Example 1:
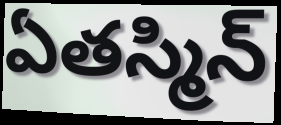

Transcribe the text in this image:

ఏతస్మిన్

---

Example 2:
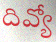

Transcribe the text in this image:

దివ్యో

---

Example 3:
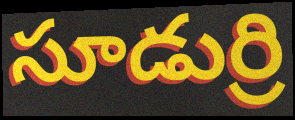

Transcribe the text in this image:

సూడుర్రి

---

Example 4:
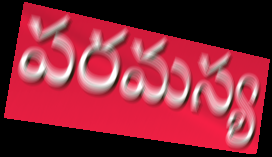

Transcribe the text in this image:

పరమస్య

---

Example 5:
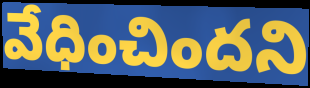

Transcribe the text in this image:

వేధించిందని